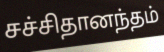
சச்சிதானந்தம்